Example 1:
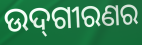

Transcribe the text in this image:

ଉଦ୍‌ଗୀରଣର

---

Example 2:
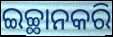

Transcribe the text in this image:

ଇଚ୍ଛାନକରି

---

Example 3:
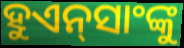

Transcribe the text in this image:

ହୁଏନ୍‌ସାଂଙ୍କୁ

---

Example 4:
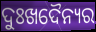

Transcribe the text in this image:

ଦୁଃଖଦୈନ୍ୟର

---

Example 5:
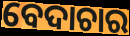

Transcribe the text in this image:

ବେଦାଚାର